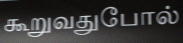
கூறுவதுபோல்